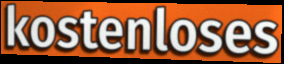
kostenloses